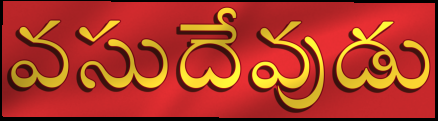
వసుదేవుడు